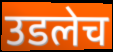
उडलेच